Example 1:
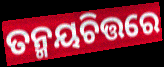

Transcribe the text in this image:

ତନ୍ମୟଚିତ୍ତରେ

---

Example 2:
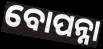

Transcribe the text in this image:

ବୋପନ୍ନା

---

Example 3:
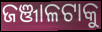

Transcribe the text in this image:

ଜଞ୍ଜାଳଟାକୁ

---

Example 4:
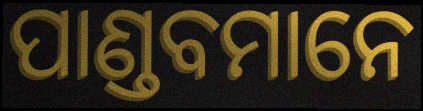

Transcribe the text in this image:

ପାଣ୍ଡବମାନେ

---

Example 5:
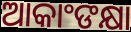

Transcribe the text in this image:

ଆକାଂଙକ୍ଷା